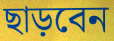
ছাড়বেন